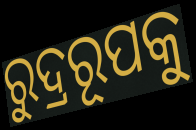
ରୁଦ୍ରରୂପକୁ